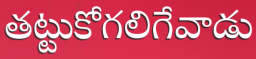
తట్టుకోగలిగేవాడు